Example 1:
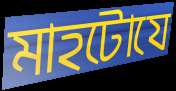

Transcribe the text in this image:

মাহটোযে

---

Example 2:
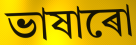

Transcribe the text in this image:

ভাষাৰো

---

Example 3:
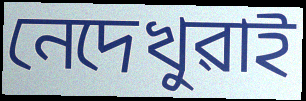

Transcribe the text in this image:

নেদেখুৱাই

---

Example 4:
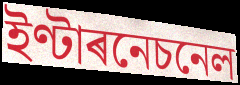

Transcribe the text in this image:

ইণ্টাৰনেচনেল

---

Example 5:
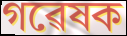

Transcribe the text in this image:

গৱেষক